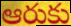
ఆరుకు